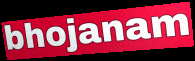
bhojanam